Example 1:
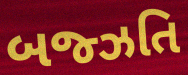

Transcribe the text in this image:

બજ્ઝતિ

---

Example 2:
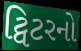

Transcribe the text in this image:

ટ્વિટરનો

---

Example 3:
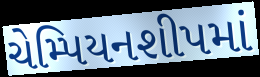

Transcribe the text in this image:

ચેમ્પિયનશીપમાં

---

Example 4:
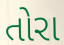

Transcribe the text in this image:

તોરા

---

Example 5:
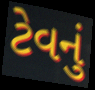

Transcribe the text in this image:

ટેવનું